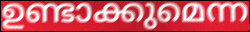
ഉണ്ടാക്കുമെന്ന